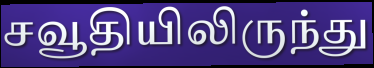
சவூதியிலிருந்து